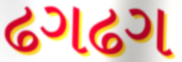
ઢગઢગ